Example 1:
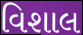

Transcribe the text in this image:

વિશાલ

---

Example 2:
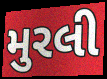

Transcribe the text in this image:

મુરલી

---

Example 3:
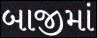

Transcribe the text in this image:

બાજીમાં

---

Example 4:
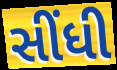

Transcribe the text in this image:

સીંધી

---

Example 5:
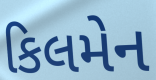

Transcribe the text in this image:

કિલમેન